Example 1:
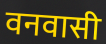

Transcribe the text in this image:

वनवासी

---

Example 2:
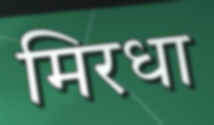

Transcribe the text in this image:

मिरधा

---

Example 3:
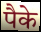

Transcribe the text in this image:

पैके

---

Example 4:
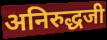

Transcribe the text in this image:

अनिरुद्धजी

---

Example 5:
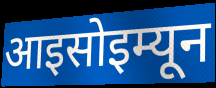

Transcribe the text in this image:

आइसोइम्यून